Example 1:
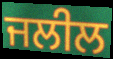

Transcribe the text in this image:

ਜਲੀਲ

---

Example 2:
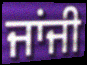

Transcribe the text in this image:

ਜਾਂਜੀ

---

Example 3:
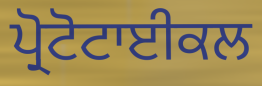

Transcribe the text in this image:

ਪ੍ਰੋਟੋਟਾਈਕਲ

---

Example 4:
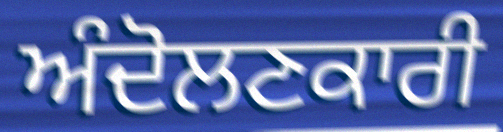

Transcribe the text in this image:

ਅੰਦੋਲਣਕਾਰੀ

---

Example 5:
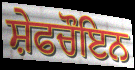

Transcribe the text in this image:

ਸ਼ੇਫਚੌਇਨ